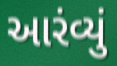
આરંવ્યું